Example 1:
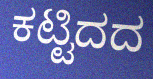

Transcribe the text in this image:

ಕಟ್ಟಿದದ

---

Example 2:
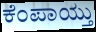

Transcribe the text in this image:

ಕೆಂಪಾಯ್ತು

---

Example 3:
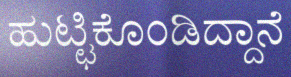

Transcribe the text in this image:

ಹುಟ್ಟಿಕೊಂಡಿದ್ದಾನೆ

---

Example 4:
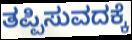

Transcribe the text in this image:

ತಪ್ಪಿಸುವದಕ್ಕೆ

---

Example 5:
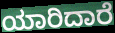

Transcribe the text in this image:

ಯಾರಿದಾರೆ